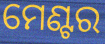
ମେଣ୍ଟର